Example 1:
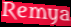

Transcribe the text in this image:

Remya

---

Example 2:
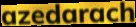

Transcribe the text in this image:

azedarach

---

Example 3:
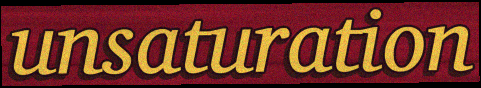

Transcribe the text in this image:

unsaturation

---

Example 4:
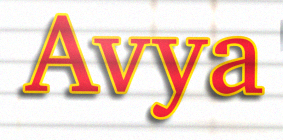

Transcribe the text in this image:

Avya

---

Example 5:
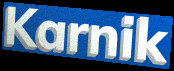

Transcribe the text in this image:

Karnik